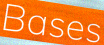
Bases